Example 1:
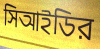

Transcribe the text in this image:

সিআইডির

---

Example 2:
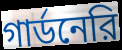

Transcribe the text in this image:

গার্ডনেরি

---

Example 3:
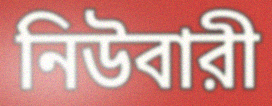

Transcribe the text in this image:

নিউবারী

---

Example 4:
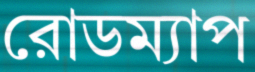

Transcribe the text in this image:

রোডম্যাপ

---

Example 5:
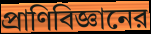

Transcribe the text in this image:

প্রাণিবিজ্ঞানের